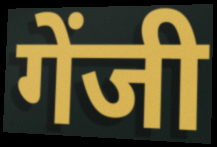
गेंजी